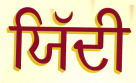
ਯਿੱਦੀ